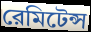
রেমিটেন্স